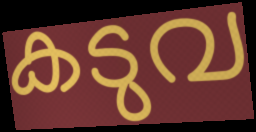
കടുവ